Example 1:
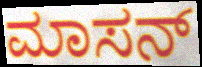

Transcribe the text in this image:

ಮಾಸನ್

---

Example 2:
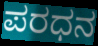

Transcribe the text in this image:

ಪರಧನ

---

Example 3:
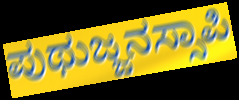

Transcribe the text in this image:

ಪುಥುಜ್ಜನಸ್ಸಾಪಿ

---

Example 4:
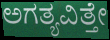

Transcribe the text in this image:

ಅಗತ್ಯವಿತ್ತೇ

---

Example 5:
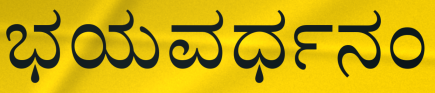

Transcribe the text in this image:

ಭಯವರ್ಧನಂ